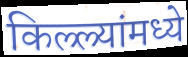
किल्ल्यांमध्ये